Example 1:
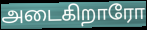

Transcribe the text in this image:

அடைகிறாரோ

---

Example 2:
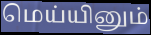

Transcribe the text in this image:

மெய்யினும்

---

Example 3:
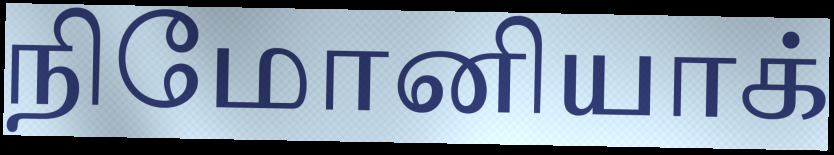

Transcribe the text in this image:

நிமோனியாக்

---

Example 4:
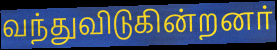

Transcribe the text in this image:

வந்துவிடுகின்றனர்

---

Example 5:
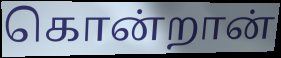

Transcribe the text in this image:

கொன்றான்